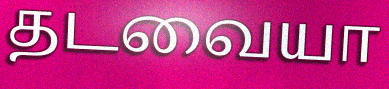
தடவையா